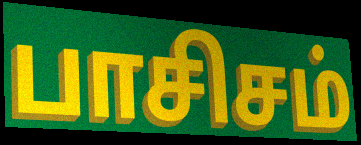
பாசிசம்